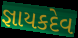
જ્ઞાયકદેવ